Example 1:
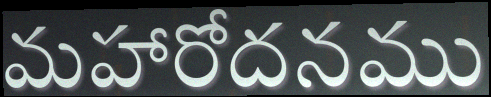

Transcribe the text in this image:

మహారోదనము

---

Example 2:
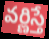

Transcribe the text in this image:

వర్ణిస్తే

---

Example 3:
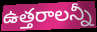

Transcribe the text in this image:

ఉత్తరాలన్నీ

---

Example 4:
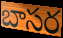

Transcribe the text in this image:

బాసర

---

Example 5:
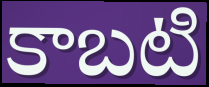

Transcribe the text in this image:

కాబటి